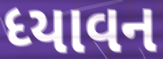
ધ્યાવન